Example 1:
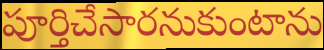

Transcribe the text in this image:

పూర్తిచేసారనుకుంటాను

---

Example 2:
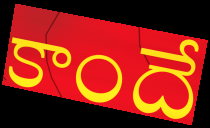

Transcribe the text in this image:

కాందే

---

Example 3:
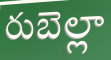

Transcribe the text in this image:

రుబెల్లా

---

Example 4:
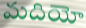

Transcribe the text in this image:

మదియో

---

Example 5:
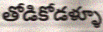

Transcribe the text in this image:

తోడికోడళ్ళూ